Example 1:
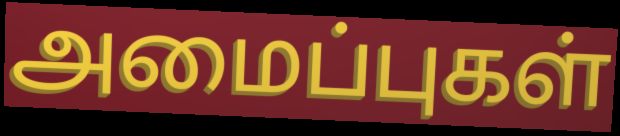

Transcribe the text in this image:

அமைப்புகள்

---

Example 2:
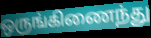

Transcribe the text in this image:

ஒருங்கிணைந்து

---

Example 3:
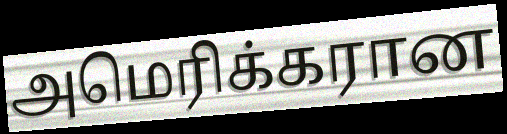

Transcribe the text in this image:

அமெரிக்கரான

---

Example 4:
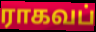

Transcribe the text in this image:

ராகவப்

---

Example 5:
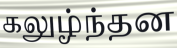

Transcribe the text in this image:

கலுழ்ந்தன